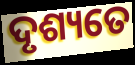
ଦୃଶ୍ୟତେ